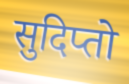
सुदिप्तो